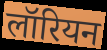
लॉरियन